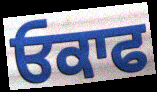
ਓਕਾਫ